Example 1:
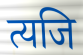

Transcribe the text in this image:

त्यजि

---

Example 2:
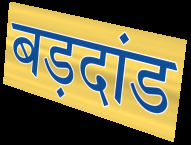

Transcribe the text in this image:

बड़दांड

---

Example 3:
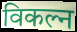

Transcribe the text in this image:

विकल्न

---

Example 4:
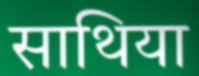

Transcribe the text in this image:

साथिया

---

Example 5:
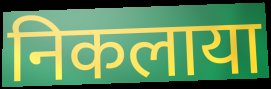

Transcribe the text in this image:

निकलाया